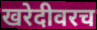
खरेदीवरच